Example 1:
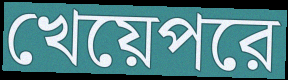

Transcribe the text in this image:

খেয়েপরে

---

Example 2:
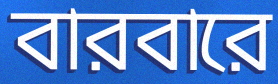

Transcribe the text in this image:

বারবারে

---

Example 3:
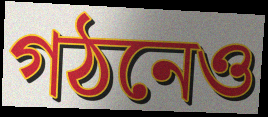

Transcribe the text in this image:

গঠনেও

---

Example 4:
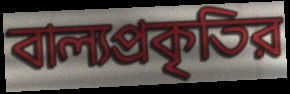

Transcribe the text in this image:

বাল্যপ্রকৃতির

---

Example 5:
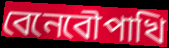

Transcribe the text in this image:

বেনেবৌপাখি